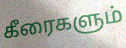
கீரைகளும்